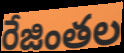
రేజింతల